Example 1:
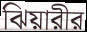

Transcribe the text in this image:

ঝিয়ারীর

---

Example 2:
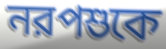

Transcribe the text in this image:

নরপশুকে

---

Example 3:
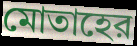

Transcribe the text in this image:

মোতাহের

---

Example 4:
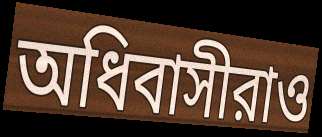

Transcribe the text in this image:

অধিবাসীরাও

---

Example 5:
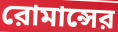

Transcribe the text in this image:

রোমান্সের